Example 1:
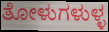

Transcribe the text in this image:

ತೋಳುಗಳುಳ್ಳ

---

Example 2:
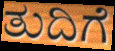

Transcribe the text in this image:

ತುದಿಗೆ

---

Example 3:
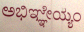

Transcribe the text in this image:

ಅಭಿಞ್ಞೇಯ್ಯಂ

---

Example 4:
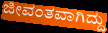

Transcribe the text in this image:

ಜೀವಂತವಾಗಿದ್ದು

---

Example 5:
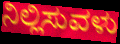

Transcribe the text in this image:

ನಿಲ್ಲಿಸುವಳು